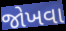
જોખવા